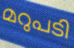
മറുപടി